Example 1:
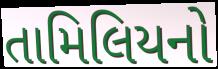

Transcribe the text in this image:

તામિલિયનો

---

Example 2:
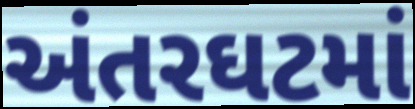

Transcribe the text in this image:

અંતરઘટમાં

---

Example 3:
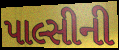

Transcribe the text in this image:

પાલ્સીની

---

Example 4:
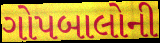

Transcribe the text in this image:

ગોપબાલોની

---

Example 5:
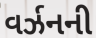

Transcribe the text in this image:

વર્ઝનની